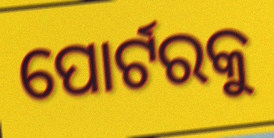
ପୋର୍ଟରକୁ